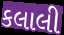
કલાલી